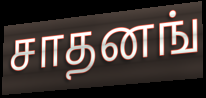
சாதனங்